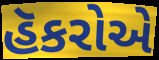
હૅકરોએ